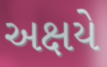
અક્ષયે